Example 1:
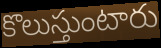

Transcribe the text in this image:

కొలుస్తుంటారు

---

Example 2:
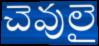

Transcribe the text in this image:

చెవులై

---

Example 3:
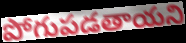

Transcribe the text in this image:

పోగుపడతాయని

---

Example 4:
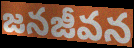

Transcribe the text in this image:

జనజీవన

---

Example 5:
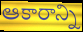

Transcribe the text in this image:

ఆకారాన్ని